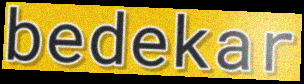
bedekar